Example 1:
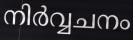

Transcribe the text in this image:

നിർവ്വചനം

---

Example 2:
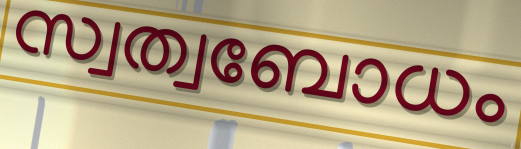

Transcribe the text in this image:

സ്വത്വബോധം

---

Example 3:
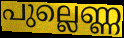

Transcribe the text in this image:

പുല്ലെണ്ണ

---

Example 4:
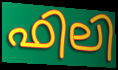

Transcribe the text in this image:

ഫിലി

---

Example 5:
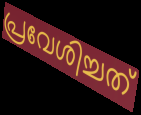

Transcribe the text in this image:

പ്രവേശിച്ചത്